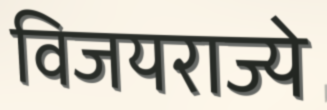
विजयराज्ये